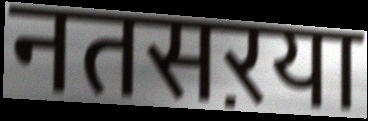
नतसऱया